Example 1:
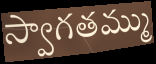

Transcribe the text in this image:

స్వాగతమ్ము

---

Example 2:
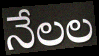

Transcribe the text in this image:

నేలల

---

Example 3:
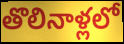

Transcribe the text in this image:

తొలినాళ్లలో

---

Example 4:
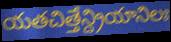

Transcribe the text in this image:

యతచిత్తేన్ద్రియానిలః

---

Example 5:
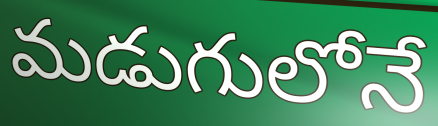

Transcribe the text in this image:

మడుగులోనే